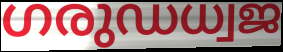
ഗരുഡധ്വജ